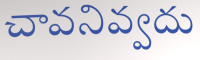
చావనివ్వదు